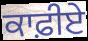
ਕਾਫ਼ੀਏ